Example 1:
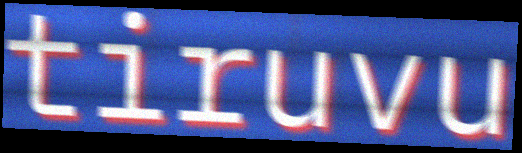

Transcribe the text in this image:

tiruvu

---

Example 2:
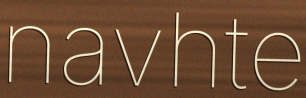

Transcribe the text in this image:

navhte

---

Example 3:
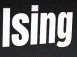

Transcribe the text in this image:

Ising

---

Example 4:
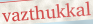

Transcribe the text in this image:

vazthukkal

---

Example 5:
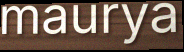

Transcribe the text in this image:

maurya